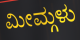
ಮೀಮ್ಗಳು